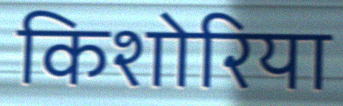
किशोरिया